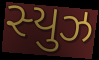
સ્યુઝ